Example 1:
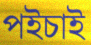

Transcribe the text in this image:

পইচাই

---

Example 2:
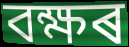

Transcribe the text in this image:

বক্ষৰ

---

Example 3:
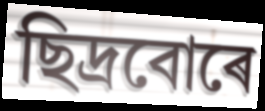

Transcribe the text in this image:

ছিদ্ৰবোৰে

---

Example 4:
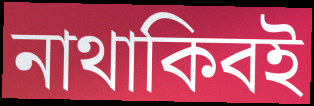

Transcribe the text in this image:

নাথাকিবই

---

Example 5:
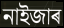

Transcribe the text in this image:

নাইজাৰ